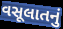
વસૂલાતનું